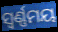
ସ୍ୱର୍ଣ୍ଣମୟ